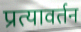
प्रत्‍यावर्तन